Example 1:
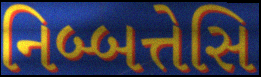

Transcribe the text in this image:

નિબ્બત્તેસિ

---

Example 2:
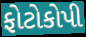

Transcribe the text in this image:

ફોટોકોપી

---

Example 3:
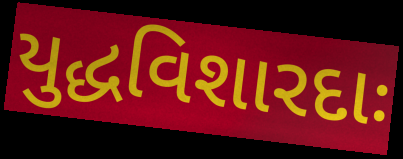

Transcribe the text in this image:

યુદ્ધવિશારદાઃ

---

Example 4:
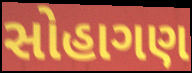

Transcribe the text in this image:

સોહાગણ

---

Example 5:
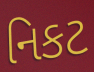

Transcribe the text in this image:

નિકટ